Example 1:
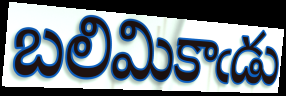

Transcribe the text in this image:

బలిమికాఁడు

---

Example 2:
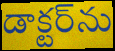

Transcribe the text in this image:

డాక్టర్‌ను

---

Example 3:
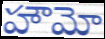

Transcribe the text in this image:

హౌమో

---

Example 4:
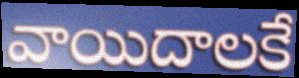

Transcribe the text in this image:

వాయిదాలకే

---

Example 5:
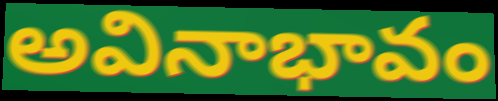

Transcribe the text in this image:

అవినాభావం